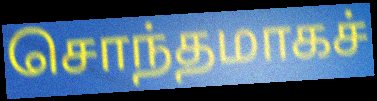
சொந்தமாகச்